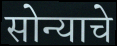
सोन्याचे